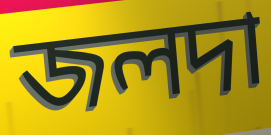
জলদা